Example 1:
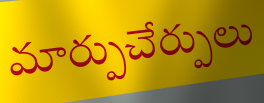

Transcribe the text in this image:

మార్పుచేర్పులు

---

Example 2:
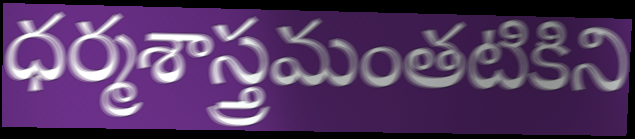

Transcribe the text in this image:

ధర్మశాస్త్రమంతటికిని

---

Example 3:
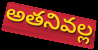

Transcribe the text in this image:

అతనివల్ల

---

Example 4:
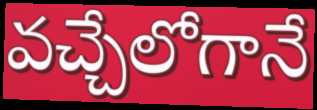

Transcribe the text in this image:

వచ్చేలోగానే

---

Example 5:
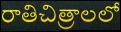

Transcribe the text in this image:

రాతిచిత్రాలలో